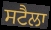
ਸਟੈਲਾ